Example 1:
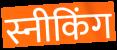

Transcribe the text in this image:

स्नीकिंग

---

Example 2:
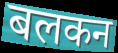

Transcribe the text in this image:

बलकन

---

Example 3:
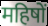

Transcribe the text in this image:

महिषों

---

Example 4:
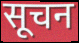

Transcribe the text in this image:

सूचन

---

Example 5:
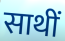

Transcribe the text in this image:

साथीं